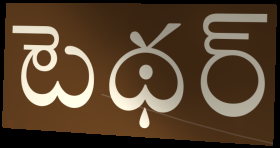
టెథర్